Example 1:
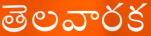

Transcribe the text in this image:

తెలవారక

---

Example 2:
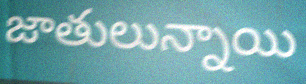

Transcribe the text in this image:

జాతులున్నాయి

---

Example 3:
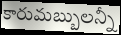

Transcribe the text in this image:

కారుమబ్బులన్నీ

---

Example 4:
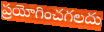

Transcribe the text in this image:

ప్రయోగించగలదు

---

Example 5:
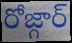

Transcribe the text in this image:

రోజ్గార్